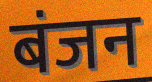
बंजन